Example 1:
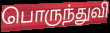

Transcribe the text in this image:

பொருந்துவி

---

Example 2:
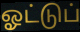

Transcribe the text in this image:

ஓட்டுப்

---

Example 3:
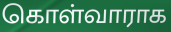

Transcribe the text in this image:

கொள்வாராக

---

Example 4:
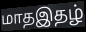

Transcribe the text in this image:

மாதஇதழ்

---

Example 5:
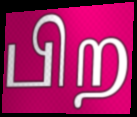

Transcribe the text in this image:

பிற